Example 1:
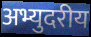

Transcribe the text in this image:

अभ्युदरीय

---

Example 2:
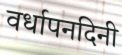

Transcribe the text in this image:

वर्धापनदिनी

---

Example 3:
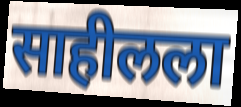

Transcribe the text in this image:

साहीलला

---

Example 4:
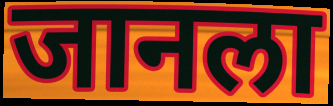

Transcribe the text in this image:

जानला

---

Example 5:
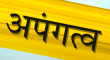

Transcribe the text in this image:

अपंगत्व